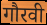
गौरवी